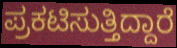
ಪ್ರಕಟಿಸುತ್ತಿದ್ದಾರೆ